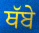
ਥੱਬੇ